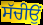
ਸੱਚੀਉਂ